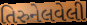
તિરુનેલવેલી